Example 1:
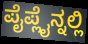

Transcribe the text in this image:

ಪೈಪ್ಲೈನ್ನಲ್ಲಿ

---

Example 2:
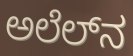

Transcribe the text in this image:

ಅಲೆಲ್‌ನ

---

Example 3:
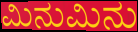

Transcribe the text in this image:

ಮಿನುಮಿನು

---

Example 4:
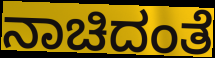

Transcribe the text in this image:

ನಾಚಿದಂತೆ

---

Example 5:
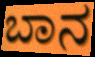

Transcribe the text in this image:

ಬಾನ